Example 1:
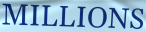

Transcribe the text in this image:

MILLIONS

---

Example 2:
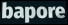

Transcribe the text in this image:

bapore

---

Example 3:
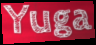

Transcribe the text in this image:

Yuga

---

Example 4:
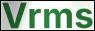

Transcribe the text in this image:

Vrms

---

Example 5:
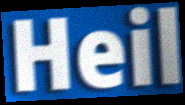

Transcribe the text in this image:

Heil